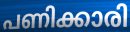
പണിക്കാരി